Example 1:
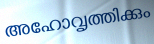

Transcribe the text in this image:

അഹോവൃത്തിക്കും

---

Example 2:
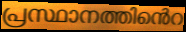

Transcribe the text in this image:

പ്രസ്ഥാനത്തിൻെറ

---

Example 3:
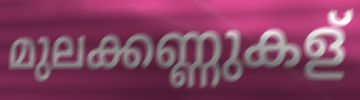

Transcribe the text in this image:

മുലക്കണ്ണുകള്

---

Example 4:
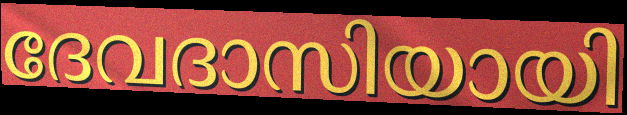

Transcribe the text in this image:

ദേവദാസിയായി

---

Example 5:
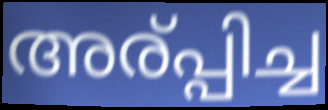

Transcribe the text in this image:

അര്പ്പിച്ച